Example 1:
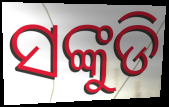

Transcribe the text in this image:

ସଙ୍କୁଡି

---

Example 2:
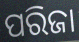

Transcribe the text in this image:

ପରିଜା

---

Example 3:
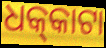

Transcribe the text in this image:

ଧକ୍‌କାଟା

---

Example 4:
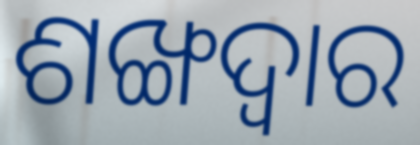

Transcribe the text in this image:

ଶଙ୍ଖଦ୍ୱାର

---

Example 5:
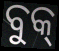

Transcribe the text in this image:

ବୁକ୍